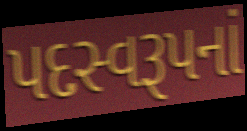
પદસ્વરૂપનાં